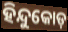
ହିନ୍ଦୁକୋଡ଼